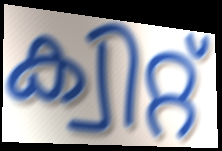
ക്വിറ്റ്